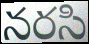
నరసి